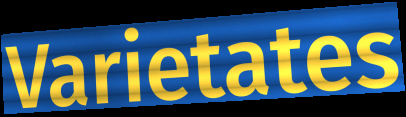
Varietates